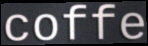
coffe